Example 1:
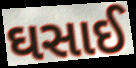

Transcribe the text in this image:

ઘસાઈ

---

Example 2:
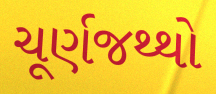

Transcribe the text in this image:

ચૂર્ણજથ્થો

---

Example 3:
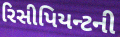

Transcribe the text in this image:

રિસીપિયન્ટની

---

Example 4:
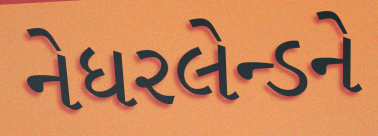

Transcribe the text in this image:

નેધરલેન્ડને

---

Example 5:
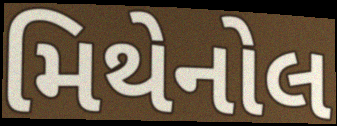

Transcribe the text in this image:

મિથેનોલ